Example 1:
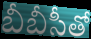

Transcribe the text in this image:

బీబీసీతో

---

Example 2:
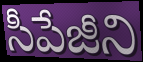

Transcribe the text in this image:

సీపేజీని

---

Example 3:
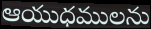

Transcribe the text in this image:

ఆయుధములను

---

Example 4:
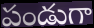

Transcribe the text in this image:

పండుగా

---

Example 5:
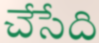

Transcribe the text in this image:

చేసేది